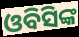
ଓବିସିଙ୍କ